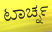
ಟಾರ್ಚ್ನ